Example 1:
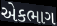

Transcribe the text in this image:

એકભાગ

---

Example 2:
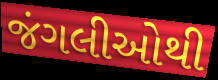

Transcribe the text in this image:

જંગલીઓથી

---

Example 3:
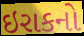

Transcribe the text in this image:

ઇરાકનો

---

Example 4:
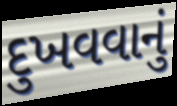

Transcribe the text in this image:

દુખવવાનું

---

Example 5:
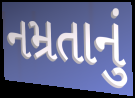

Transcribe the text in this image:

નમ્રતાનું